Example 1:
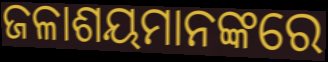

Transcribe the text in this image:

ଜଳାଶୟମାନଙ୍କରେ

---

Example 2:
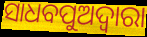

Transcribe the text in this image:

ସାଧବପୁଅଦ୍ୱାରା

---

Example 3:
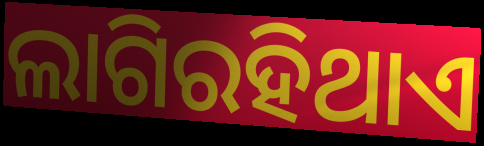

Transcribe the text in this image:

ଲାଗିରହିଥାଏ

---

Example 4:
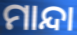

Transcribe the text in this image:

ମାନ୍ଦା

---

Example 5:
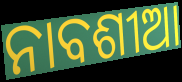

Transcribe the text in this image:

ନାବଶୀଆ